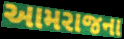
આમરાજના